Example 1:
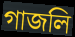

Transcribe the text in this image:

গাজলি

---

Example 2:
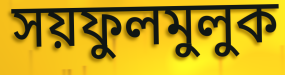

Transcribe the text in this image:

সয়ফুলমুলুক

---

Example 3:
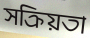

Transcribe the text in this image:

সক্রিয়তা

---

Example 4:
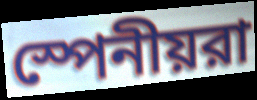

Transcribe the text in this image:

স্পেনীয়রা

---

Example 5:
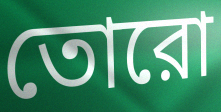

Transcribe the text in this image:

তোরো